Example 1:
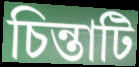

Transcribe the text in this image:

চিন্তাটি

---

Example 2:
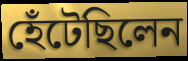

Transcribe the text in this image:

হেঁটেছিলেন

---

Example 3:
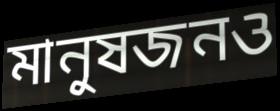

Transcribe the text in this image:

মানুষজনও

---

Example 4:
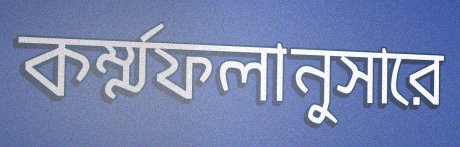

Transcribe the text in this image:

কর্ম্মফলানুসারে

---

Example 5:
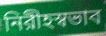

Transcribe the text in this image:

নিরীহস্বভাব